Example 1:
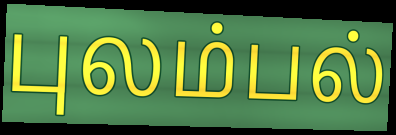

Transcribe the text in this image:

புலம்பல்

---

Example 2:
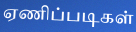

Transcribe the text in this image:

ஏணிப்படிகள்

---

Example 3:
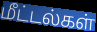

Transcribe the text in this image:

மீட்டல்கள்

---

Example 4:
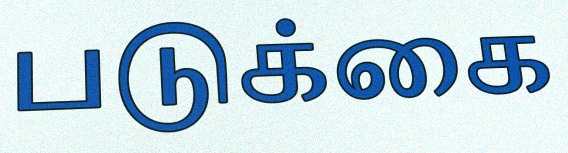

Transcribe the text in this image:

படுக்கை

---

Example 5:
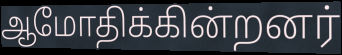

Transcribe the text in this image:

ஆமோதிக்கின்றனர்